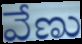
వేణు